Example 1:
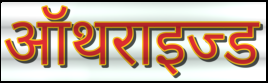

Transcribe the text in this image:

ऑथराइज्ड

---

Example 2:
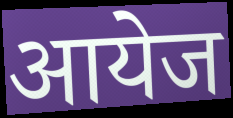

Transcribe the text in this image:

आयेज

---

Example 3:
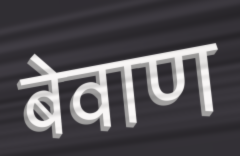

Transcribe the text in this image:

बेवाण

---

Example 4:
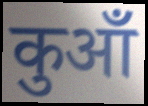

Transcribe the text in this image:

कुआँ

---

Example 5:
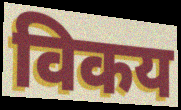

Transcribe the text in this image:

विकय